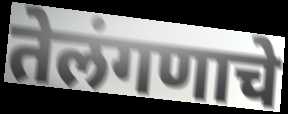
तेलंगणाचे